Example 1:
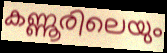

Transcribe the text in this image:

കണ്ണൂരിലെയും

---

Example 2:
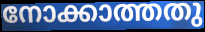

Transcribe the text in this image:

നോക്കാത്തതു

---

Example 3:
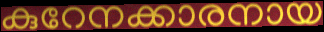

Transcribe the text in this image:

കുറേനക്കാരനായ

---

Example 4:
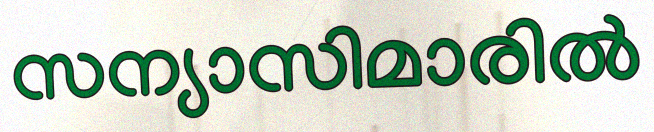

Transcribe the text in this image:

സന്യാസിമാരിൽ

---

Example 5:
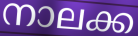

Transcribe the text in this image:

നാലക്ക